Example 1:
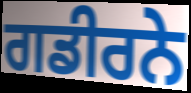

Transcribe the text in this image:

ਗਡੀਰਨੇ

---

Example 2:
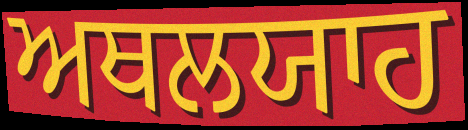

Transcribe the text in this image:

ਅਥਲਯਾਹ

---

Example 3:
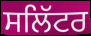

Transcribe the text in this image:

ਸਲਿੱਟਰ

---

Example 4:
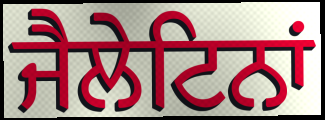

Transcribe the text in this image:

ਜੈਲੇਟਿਨਾਂ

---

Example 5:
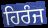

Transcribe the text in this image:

ਹਿਰੰਜ